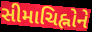
સીમાચિહ્નોને